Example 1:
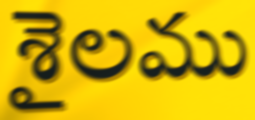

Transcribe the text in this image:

శైలము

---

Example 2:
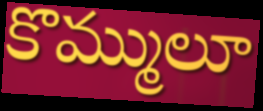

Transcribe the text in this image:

కొమ్ములూ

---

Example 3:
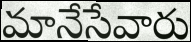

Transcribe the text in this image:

మానేసేవారు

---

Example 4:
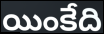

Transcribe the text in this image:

యింకేది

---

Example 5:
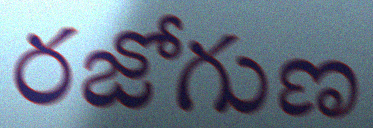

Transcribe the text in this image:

రజోగుణ